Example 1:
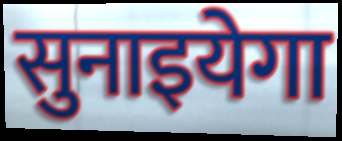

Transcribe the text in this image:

सुनाइयेगा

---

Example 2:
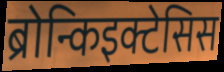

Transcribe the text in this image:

ब्रोन्किइक्टेसिस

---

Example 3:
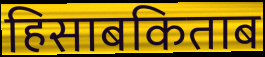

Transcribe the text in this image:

हिसाबकिताब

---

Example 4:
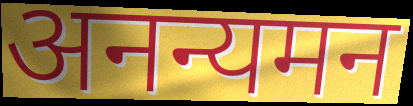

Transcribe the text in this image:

अनन्यमन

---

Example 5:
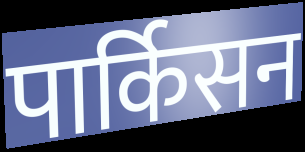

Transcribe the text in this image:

पार्किसन